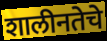
शालीनतेचे